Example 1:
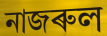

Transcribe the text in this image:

নাজৰুল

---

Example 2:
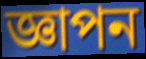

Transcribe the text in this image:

জ্ঞাপন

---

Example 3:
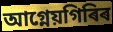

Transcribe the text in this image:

আগ্নেয়গিৰিৰ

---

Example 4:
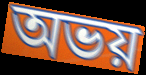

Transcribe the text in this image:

অভয়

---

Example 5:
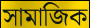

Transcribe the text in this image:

সামাজিক